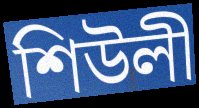
শিউলী